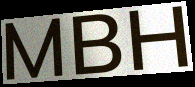
MBH